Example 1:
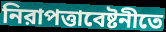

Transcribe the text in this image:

নিরাপত্তাবেষ্টনীতে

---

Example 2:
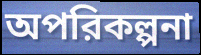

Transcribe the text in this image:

অপরিকল্পনা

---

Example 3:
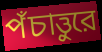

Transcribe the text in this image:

পঁচাত্তুরে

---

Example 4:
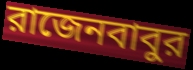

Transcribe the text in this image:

রাজেনবাবুর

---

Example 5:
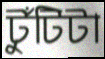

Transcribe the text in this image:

টুঁটিটা